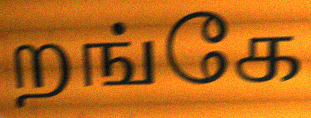
றங்கே